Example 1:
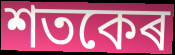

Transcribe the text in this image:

শতকেৰ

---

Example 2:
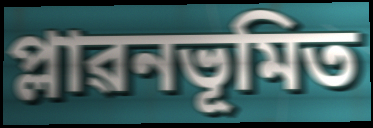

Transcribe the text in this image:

প্লাৱনভূমিত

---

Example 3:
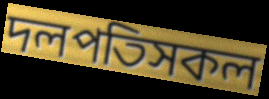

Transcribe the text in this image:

দলপতিসকল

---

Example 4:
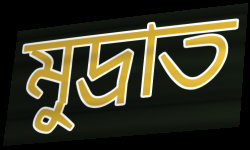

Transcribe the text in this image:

মুদ্ৰাত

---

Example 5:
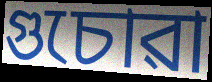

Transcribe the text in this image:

গুচোৱা